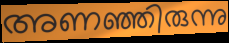
അണഞ്ഞിരുന്നു